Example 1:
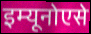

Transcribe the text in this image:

इम्यूनोएसे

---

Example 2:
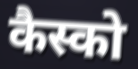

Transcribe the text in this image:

कैस्को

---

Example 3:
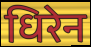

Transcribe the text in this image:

धिरेन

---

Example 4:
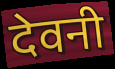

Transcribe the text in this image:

देवनी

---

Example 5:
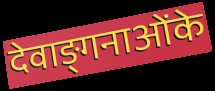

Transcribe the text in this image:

देवाङ्गनाओंके